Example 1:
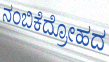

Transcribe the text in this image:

ನಂಬಿಕೆದ್ರೋಹದ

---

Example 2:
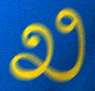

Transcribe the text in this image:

ಖಿ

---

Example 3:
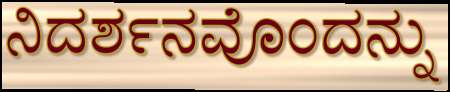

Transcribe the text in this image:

ನಿದರ್ಶನವೊಂದನ್ನು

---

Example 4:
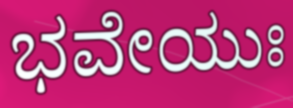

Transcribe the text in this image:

ಭವೇಯುಃ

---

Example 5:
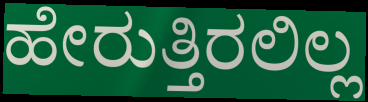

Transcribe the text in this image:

ಹೇರುತ್ತಿರಲಿಲ್ಲ